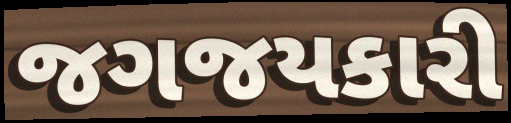
જગજયકારી